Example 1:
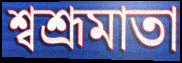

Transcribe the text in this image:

শ্বশ্রূমাতা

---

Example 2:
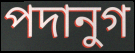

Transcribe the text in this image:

পদানুগ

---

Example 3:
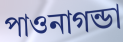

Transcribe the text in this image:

পাওনাগন্ডা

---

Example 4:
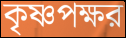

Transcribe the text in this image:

কৃষ্ণপক্ষর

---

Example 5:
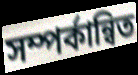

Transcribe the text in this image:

সম্পর্কান্বিত